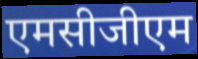
एमसीजीएम